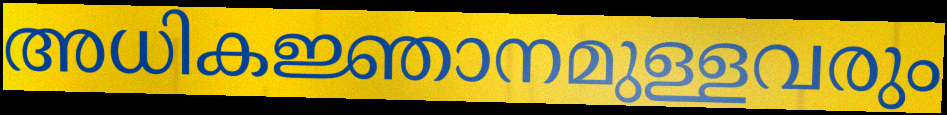
അധികജ്ഞാനമുള്ളവരും